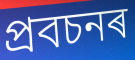
প্ৰবচনৰ